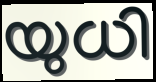
യുധി